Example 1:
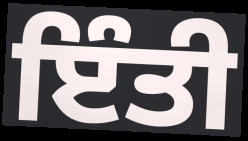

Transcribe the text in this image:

ਇੰਤੀ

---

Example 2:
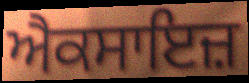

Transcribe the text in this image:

ਐਕਸਾਇਜ਼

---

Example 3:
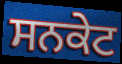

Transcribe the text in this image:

ਸਨਕੇਟ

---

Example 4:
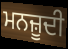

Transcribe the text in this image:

ਮਨਜ਼ੂਦੀ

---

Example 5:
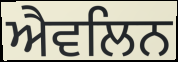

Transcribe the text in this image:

ਐਵਲਿਨ